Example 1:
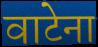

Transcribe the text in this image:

वाटेना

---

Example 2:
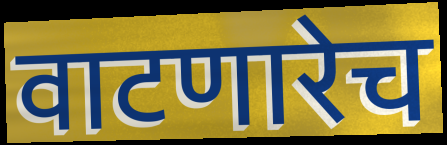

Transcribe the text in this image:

वाटणारेच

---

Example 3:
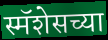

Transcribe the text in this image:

स्मॅशेसच्या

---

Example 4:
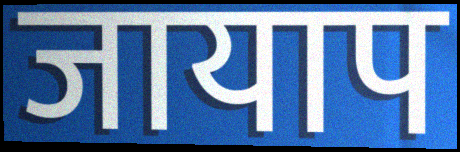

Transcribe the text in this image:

जायाप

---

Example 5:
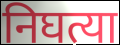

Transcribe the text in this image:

निघत्या